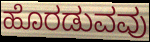
ಹೊರಡುವವು